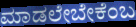
ಮಾಡಲೇಬೇಕೆಂಬ